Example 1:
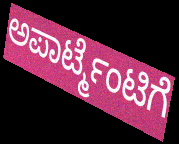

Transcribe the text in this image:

ಅಪಾರ್ಟ್ಮೆಂಟಿಗೆ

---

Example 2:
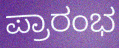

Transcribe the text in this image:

ಪ್ರಾರಂಭ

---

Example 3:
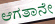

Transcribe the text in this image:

ಆಗತಾನೇ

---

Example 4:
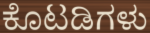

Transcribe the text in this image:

ಕೊಟಡಿಗಳು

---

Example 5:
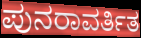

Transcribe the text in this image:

ಪುನರಾವರ್ತಿತ